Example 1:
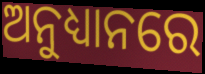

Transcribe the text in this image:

ଅନୁଧ୍ୟାନରେ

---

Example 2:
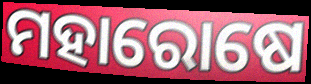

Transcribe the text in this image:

ମହାରୋଷେ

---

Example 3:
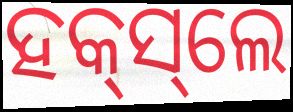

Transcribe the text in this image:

ହକ୍‌ସ୍‌ଲେ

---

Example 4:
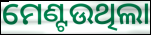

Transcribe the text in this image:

ମେଣ୍ଟଉଥିଲା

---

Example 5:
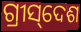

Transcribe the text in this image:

ଗ୍ରୀସ୍‌ଦେଶ